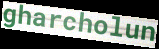
gharcholun